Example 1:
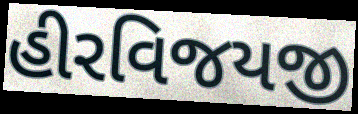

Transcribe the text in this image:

હીરવિજયજી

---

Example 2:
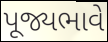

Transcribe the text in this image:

પૂજ્યભાવે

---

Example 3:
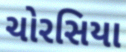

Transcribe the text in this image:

ચોરસિયા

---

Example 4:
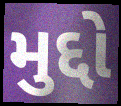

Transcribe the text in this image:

મુદ્દો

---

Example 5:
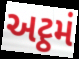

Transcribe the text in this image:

અટ્ઠમં